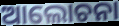
ଆଲୋଚନା